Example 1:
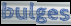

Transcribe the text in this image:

bulges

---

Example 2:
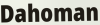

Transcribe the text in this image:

Dahoman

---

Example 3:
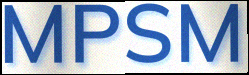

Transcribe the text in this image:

MPSM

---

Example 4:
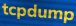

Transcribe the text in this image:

tcpdump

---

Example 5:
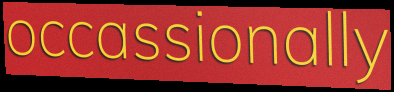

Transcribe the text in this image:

occassionally